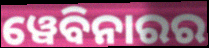
ୱେବିନାରର